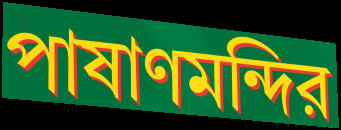
পাষাণমন্দির